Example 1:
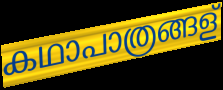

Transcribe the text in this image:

കഥാപാത്രങ്ങള്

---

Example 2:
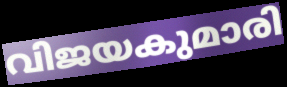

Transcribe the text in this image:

വിജയകുമാരി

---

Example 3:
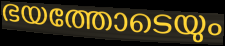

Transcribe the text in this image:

ഭയത്തോടെയും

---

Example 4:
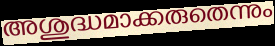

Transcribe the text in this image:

അശുദ്ധമാക്കരുതെന്നും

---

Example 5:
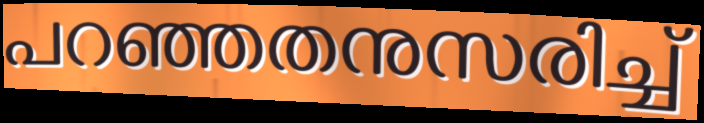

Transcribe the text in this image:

പറഞ്ഞതനുസരിച്ച്